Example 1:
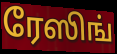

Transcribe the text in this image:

ரேஸிங்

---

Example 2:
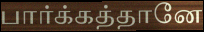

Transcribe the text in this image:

பார்க்கத்தானே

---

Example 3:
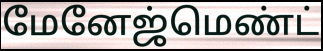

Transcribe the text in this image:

மேனேஜ்மெண்ட்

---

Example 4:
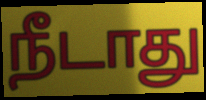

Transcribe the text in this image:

நீடாது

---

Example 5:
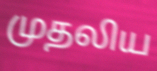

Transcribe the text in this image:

முதலிய